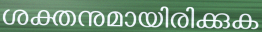
ശക്തനുമായിരിക്കുക